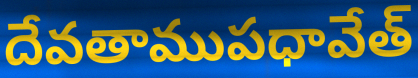
దేవతాముపధావేత్